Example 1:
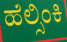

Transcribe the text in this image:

ಹೆಲ್ಸಿಂಕಿ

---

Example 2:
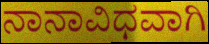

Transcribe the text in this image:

ನಾನಾವಿಧವಾಗಿ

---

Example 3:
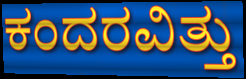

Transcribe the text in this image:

ಕಂದರವಿತ್ತು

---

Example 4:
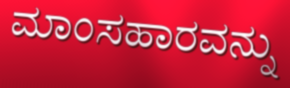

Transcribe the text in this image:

ಮಾಂಸಹಾರವನ್ನು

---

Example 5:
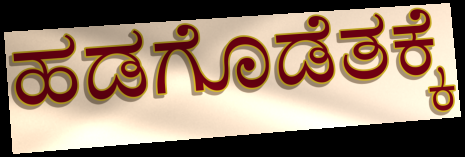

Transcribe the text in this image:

ಹಡಗೊಡೆತಕ್ಕೆ